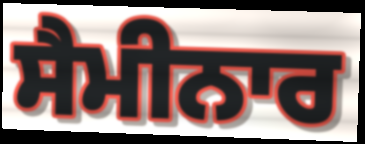
ਸੈਮੀਨਾਰ